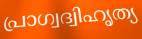
പ്രാഗ്വദ്വിഹൃത്യ